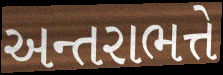
અન્તરાભત્તે